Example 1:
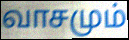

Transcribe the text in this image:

வாசமும்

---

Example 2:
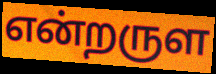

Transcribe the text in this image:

என்றருள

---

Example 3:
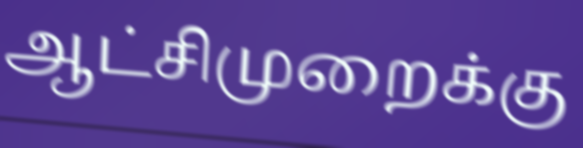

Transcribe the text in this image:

ஆட்சிமுறைக்கு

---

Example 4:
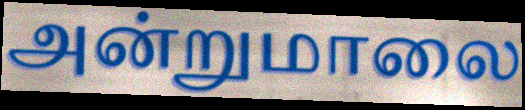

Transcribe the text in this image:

அன்றுமாலை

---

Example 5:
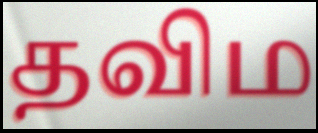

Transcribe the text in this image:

தவிம